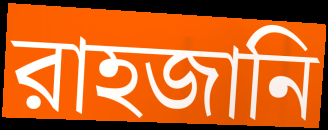
রাহজানি